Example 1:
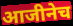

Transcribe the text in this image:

आजीनेच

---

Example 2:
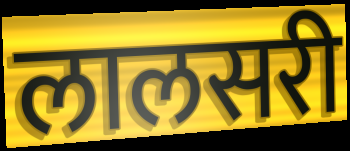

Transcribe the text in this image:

लालसरी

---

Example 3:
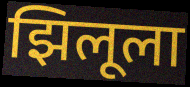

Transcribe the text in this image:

झिलूला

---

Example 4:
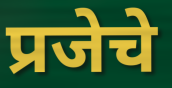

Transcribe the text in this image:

प्रजेचे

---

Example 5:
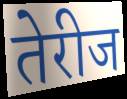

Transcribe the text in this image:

तेरीज